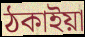
ঠকাইয়া